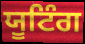
ਯੂਟਿੰਗ